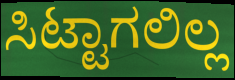
ಸಿಟ್ಟಾಗಲಿಲ್ಲ